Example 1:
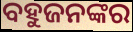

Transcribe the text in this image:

ବହୁଜନଙ୍କର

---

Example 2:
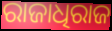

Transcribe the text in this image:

ରାଜାଧିରାଜ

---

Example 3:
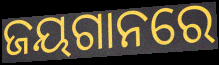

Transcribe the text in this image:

ଜୟଗାନରେ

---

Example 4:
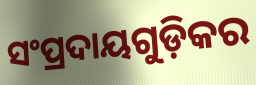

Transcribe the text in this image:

ସଂପ୍ରଦାୟଗୁଡ଼ିକର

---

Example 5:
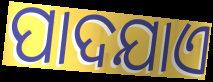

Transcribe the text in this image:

ପାଦଯାଏ